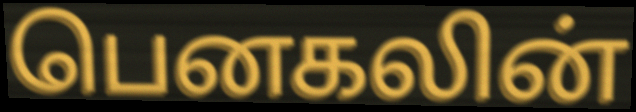
பெனகலின்